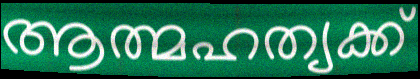
ആത്മഹത്യക്ക്